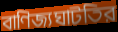
বাণিজ্যঘাটতির